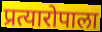
प्रत्यारोपाला